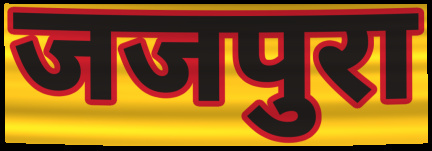
जजपुरा